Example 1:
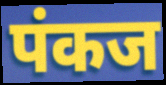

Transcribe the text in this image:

पंकज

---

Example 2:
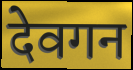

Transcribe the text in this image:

देवगन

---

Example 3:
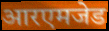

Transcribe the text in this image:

आरएमजेड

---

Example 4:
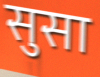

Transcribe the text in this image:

सुसा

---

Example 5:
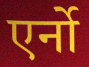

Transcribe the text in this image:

एर्नो